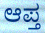
ಆಪ್ತ